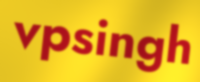
vpsingh